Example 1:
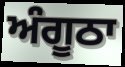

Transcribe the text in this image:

ਅੰਗੂਠਾ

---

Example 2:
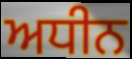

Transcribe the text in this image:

ਅਧੀਨ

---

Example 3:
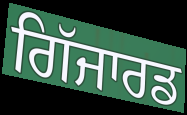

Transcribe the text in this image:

ਗਿੱਜਾਰਡ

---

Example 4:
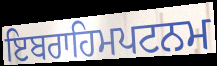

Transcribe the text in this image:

ਇਬਰਾਹਿਮਪਟਨਮ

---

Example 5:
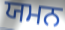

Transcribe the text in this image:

ਯਮਨ